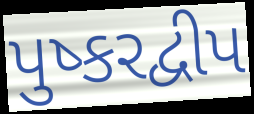
પુષ્કરદ્વીપ